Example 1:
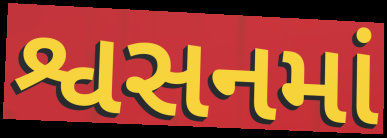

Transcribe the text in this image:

શ્વસનમાં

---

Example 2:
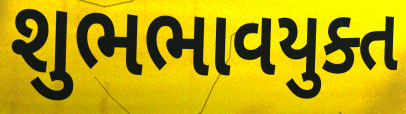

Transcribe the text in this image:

શુભભાવયુક્ત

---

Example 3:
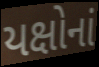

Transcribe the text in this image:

યક્ષોનાં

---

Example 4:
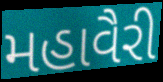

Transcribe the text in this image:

મહાવૈરી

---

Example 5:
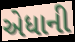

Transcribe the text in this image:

એધાની